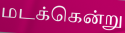
மடக்கென்று